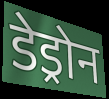
डेड्रोन